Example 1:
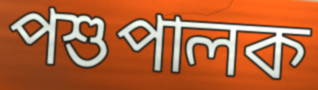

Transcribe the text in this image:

পশুপালক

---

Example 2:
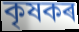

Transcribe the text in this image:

কৃষকৰ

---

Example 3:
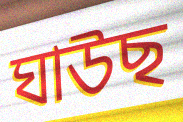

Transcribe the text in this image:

ঘাউছ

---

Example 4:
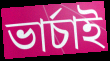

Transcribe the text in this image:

ভাৰ্চাই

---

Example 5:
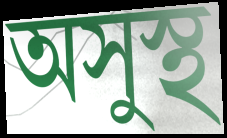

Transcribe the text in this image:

অসুস্থ